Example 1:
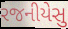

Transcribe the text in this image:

રજનીયેસુ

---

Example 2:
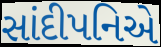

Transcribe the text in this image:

સાંદીપનિએ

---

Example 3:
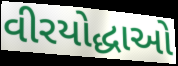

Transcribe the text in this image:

વીરયોદ્ધાઓ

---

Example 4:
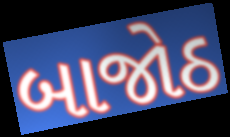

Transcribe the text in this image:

બાજોઠ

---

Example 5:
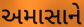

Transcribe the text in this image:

અમાસાને